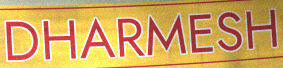
DHARMESH